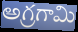
అగ్రగామి